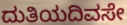
ದುತಿಯದಿವಸೇ